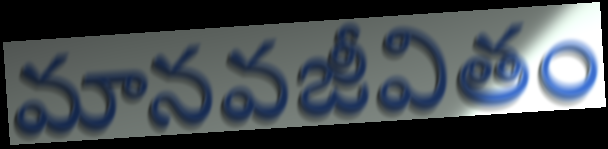
మానవజీవితం